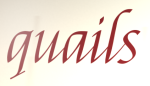
quails